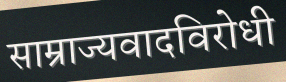
साम्राज्यवादविरोधी